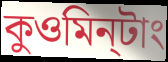
কুওমিন্‌টাং